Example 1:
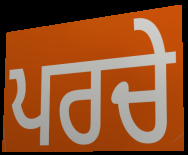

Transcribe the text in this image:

ਪਰਚੇ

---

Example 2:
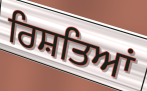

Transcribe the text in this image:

ਰਿਸ਼ਤਿਆਂ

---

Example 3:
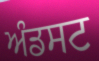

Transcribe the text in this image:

ਅੰਡਸਟ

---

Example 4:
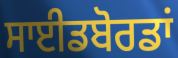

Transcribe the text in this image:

ਸਾਈਡਬੋਰਡਾਂ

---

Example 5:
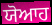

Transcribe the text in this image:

ਯੋਆਹ